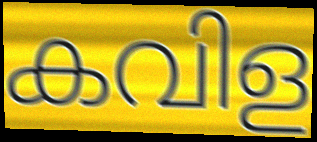
കവിള